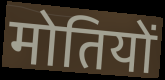
मोतियों